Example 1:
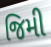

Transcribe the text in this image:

જિમી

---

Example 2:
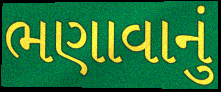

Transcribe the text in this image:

ભણાવાનું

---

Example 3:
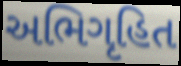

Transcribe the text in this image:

અભિગૃહિત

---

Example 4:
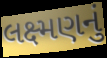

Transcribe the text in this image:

લક્ષ્મણનું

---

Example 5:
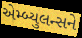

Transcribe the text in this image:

એમ્બ્યુલન્સને